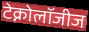
टेक्नोलॉजीज